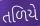
તળિયે